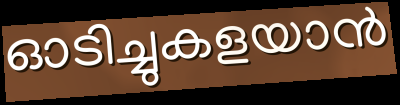
ഓടിച്ചുകളയാൻ